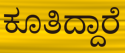
ಕೂತಿದ್ದಾರೆ